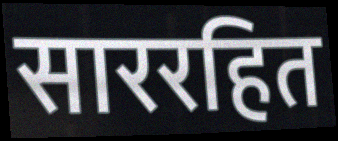
साररहित